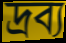
দ্ৰব্য